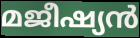
മജീഷ്യൻ